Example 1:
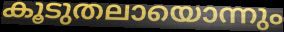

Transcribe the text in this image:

കൂടുതലായൊന്നും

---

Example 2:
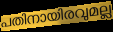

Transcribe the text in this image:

പതിനായിരവുമല്ല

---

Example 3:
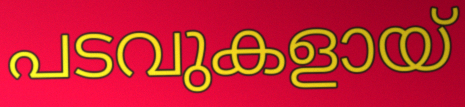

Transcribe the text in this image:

പടവുകളായ്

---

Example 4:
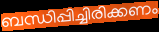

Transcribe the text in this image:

ബന്ധിപ്പിച്ചിരിക്കണം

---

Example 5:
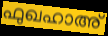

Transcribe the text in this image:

ഫുഖഹാഅ്